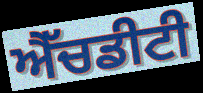
ਐੱਚਡੀਟੀ